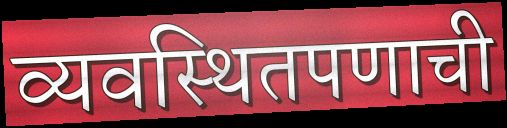
व्यवस्थितपणाची